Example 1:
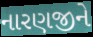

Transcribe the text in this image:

નારણજીને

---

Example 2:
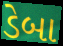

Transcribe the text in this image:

ડેબા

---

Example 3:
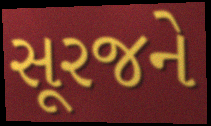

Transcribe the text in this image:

સૂરજને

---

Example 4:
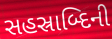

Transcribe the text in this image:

સહસ્રાબ્દિની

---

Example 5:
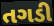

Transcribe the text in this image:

તગડી